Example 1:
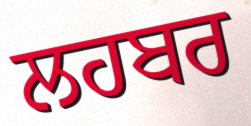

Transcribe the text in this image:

ਲਹਬਰ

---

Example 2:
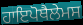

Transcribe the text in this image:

ਹਾਇਪੋਥੈਲੇਮਸ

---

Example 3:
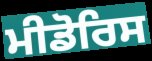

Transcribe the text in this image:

ਮੀਡੋਰਿਸ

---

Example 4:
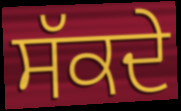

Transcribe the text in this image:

ਸੱਕਦੇ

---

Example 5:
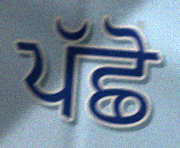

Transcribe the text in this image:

ਪੱਛੋ